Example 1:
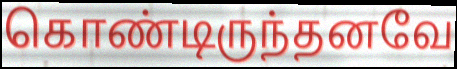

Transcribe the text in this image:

கொண்டிருந்தனவே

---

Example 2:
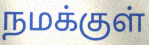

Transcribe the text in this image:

நமக்குள்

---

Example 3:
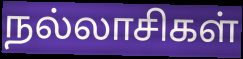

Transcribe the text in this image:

நல்லாசிகள்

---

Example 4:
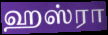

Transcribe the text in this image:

ஹஸ்ரா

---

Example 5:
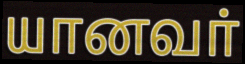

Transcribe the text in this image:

யானவர்